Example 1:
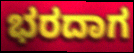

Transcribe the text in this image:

ಭರದಾಗ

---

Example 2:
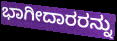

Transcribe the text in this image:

ಭಾಗೀದಾರರನ್ನು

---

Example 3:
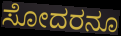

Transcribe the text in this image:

ಸೋದರನೂ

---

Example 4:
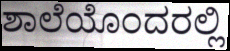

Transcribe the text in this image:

ಶಾಲೆಯೊಂದರಲ್ಲಿ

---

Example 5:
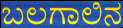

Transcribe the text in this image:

ಬಲಗಾಲಿನ